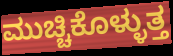
ಮುಚ್ಚಿಕೊಳ್ಳುತ್ತ